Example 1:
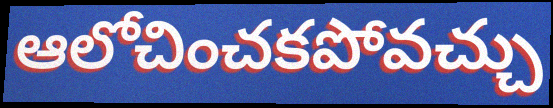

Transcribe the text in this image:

ఆలోచించకపోవచ్చు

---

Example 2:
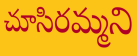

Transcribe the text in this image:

చూసిరమ్మని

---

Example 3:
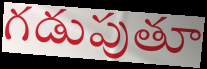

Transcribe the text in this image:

గడుపుతూ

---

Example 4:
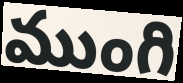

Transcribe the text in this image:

ముంగి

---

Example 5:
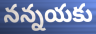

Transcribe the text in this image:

నన్నయకు